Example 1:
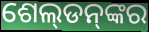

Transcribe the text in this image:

ଶେଲ୍‌ଡନ୍‌ଙ୍କର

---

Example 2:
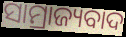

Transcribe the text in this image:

ସାମ୍ରାଜ୍ୟବାଦ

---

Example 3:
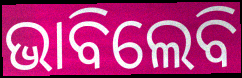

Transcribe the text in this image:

ଭାବିଲେବି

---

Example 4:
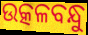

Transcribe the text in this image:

ଉତ୍କଳବନ୍ଧୁ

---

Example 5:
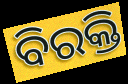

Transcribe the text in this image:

ବିରକ୍ତି